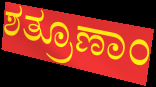
ಶತ್ರೂಣಾಂ